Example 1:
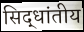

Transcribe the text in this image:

सिद्धांतीय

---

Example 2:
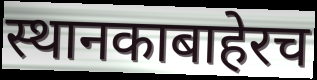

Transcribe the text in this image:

स्थानकाबाहेरच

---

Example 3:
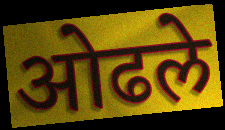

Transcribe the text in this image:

ओढले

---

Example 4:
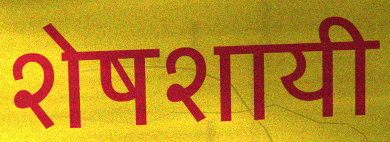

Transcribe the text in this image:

शेषशायी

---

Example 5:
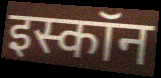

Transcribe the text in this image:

इस्कॉन